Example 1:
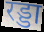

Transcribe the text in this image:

रड्डा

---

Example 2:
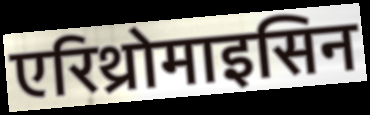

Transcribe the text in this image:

एरिथ्रोमाइसिन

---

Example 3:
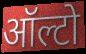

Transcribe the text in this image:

ऑल्टो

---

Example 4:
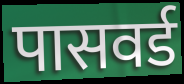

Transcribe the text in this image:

पासवर्ड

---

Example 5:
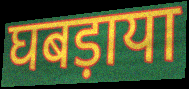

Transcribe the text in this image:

घबड़ाया